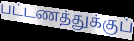
பட்டணத்துக்குப்